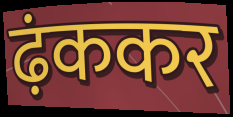
ढ़ंककर